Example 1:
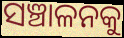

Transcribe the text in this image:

ସଞ୍ଚାଳନକୁ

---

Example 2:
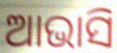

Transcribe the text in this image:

ଆଭାସି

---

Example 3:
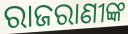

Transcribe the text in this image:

ରାଜରାଣୀଙ୍କ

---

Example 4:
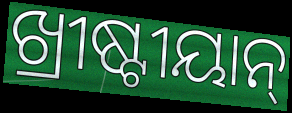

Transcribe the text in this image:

ଖ୍ରୀଷ୍ଟୀୟାନ୍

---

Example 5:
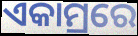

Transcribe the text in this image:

ଏକାମ୍ରରେ